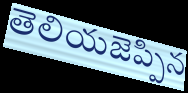
తెలియజెప్పిన